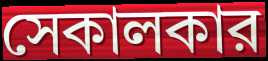
সেকালকার